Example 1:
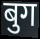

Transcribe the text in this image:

बुग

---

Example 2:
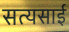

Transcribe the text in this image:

सत्यसाई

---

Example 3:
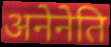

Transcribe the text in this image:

अनेनेति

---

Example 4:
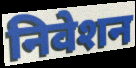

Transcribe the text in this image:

निवेशन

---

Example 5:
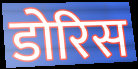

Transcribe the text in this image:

डोरिस